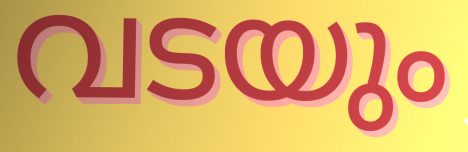
വടയും